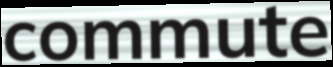
commute